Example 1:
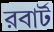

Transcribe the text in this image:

রবার্ট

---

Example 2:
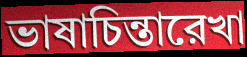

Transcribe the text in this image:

ভাষাচিন্তারেখা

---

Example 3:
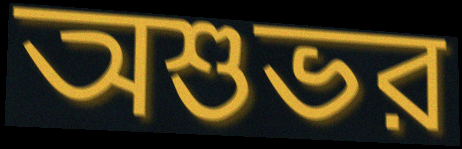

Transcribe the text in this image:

অশুভর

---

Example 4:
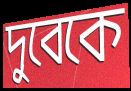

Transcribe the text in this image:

দুবেকে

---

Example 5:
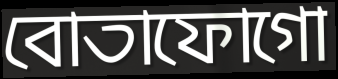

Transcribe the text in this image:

বোতাফোগো